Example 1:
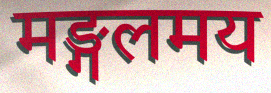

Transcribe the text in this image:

मङ्गलमय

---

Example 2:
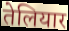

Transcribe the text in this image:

तेलियार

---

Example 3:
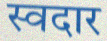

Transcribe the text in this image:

स्वदार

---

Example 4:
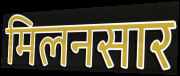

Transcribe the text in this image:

मिलनसार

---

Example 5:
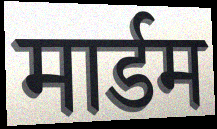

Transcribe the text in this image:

मार्डम